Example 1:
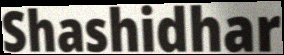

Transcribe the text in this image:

Shashidhar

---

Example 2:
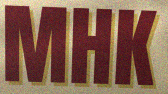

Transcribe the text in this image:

MHK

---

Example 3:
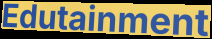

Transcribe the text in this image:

Edutainment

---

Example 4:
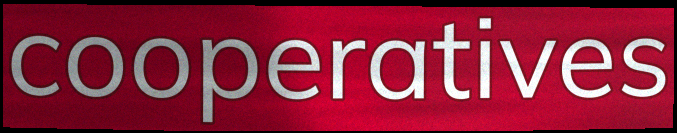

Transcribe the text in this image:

cooperatives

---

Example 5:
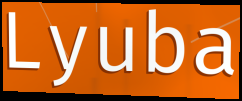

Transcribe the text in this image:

Lyuba